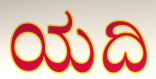
ಯದಿ